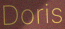
Doris